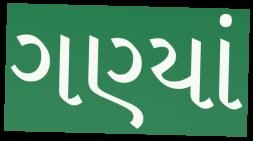
ગણ્યાં